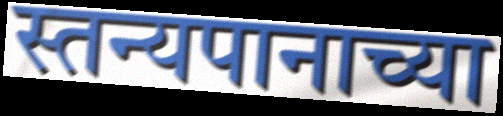
स्तन्यपानाच्या